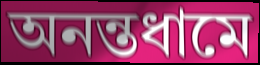
অনন্তধামে